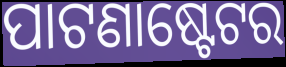
ପାଟଣାଷ୍ଟେଟର